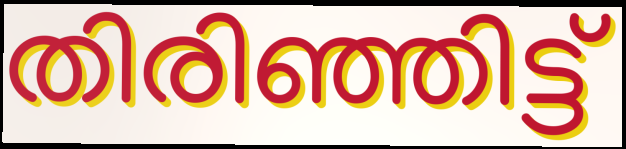
തിരിഞ്ഞിട്ട്